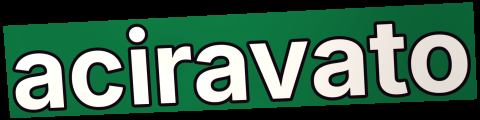
aciravato